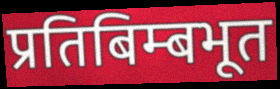
प्रतिबिम्बभूत